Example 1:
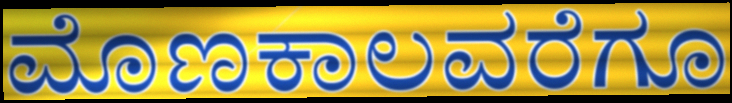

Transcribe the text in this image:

ಮೊಣಕಾಲವರೆಗೂ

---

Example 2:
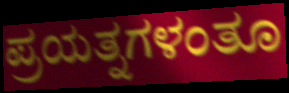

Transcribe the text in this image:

ಪ್ರಯತ್ನಗಳಂತೂ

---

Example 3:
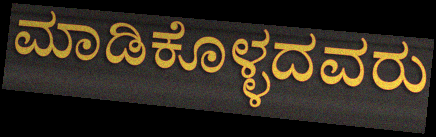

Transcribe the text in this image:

ಮಾಡಿಕೊಳ್ಳದವರು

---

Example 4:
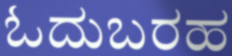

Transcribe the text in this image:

ಓದುಬರಹ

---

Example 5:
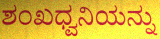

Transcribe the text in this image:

ಶಂಖಧ್ವನಿಯನ್ನು